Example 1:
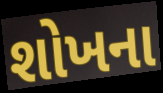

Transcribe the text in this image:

શોખના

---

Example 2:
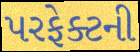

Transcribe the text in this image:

પરફેક્ટની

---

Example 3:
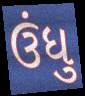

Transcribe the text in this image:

ઉંધુ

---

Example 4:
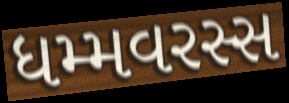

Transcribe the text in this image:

ધમ્મવરસ્સ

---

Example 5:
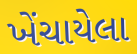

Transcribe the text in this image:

ખેંચાયેલા